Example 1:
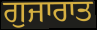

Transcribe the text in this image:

ਗੁਜਾਰਾਤ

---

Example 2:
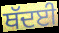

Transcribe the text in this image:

ਥੱਦਈ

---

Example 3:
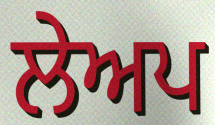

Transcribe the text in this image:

ਲੇਅਪ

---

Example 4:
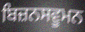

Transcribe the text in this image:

ਬਿਜ਼ਨਸਵੂਮਨ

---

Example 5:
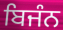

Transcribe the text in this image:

ਬਿਜੰਨ